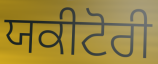
ਯਕੀਟੋਰੀ